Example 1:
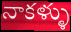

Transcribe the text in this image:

నాకళ్ళు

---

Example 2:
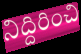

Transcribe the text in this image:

నిద్దిరించి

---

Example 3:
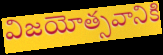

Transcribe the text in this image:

విజయోత్సవానికి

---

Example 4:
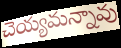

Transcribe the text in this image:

చెయ్యమన్నావు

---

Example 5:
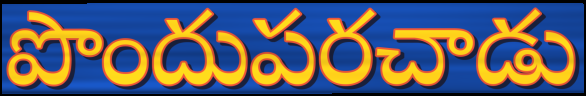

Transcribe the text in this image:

పొందుపరచాడు